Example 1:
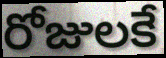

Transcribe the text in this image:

రోజులకే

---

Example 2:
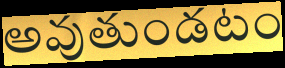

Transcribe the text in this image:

అవుతుండటం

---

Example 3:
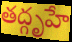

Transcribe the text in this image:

తద్గృహే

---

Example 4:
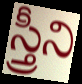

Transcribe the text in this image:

స్త్రీని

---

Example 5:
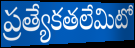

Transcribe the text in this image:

ప్రత్యేకతలేమిటో